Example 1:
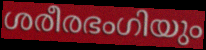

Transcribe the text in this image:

ശരീരഭംഗിയും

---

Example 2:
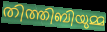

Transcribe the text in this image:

തിത്തിബിയുമ്മ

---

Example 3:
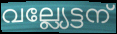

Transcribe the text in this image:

വല്ല്യേട്ടന്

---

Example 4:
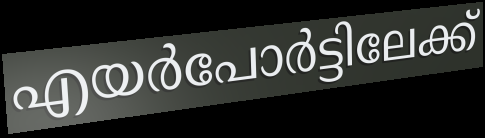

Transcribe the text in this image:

എയർപോർട്ടിലേക്ക്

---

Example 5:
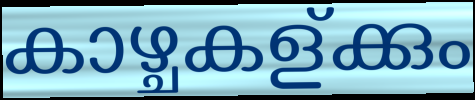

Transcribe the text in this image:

കാഴ്ചകള്ക്കും